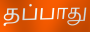
தப்பாது